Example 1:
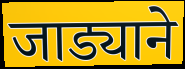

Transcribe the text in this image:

जाड्याने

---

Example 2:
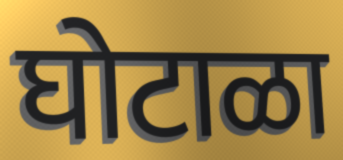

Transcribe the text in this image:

घोटाळा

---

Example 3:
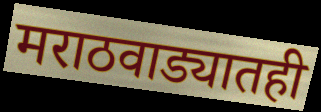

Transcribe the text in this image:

मराठवाड्यातही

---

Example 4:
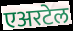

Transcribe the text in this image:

एअरटेल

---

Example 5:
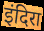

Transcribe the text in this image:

इंदिरा